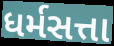
ધર્મસત્તા